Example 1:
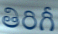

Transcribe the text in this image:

తిరిగీ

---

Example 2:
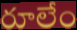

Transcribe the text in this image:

రూలేం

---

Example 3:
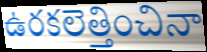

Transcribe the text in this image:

ఉరకలెత్తించినా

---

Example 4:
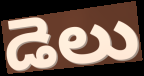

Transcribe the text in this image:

డెలు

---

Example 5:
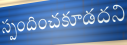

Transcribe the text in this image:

స్పందించకూడదని